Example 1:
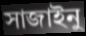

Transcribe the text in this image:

সাজাইনু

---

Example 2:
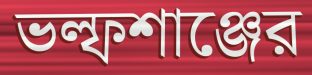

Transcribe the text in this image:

ভল্ফশাঞ্জের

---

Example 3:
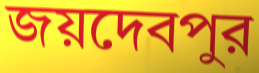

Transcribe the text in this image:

জয়দেবপুর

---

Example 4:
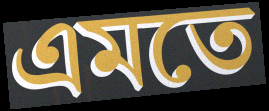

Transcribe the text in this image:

এমতে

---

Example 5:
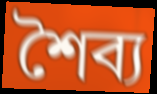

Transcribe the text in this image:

শৈব্য